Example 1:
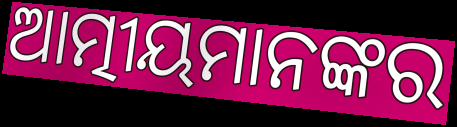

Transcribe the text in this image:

ଆତ୍ମୀୟମାନଙ୍କର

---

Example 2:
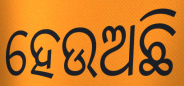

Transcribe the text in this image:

ହେଉଅଛି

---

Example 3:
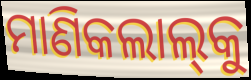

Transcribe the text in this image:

ମାଣିକଲାଲ୍‍କୁ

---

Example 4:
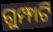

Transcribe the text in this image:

ଗୁମ୍ଫାଟି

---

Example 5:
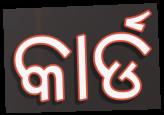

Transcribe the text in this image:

କାର୍ଡ